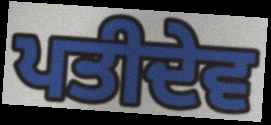
ਪਤੀਦੇਵ